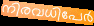
നിരവധിപേർ